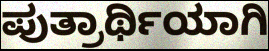
ಪುತ್ರಾರ್ಥಿಯಾಗಿ